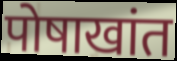
पोषाखांत